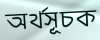
অর্থসূচক